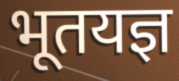
भूतयज्ञ